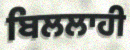
ਬਿਲਲਾਹੀ